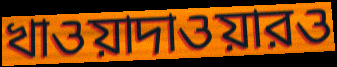
খাওয়াদাওয়ারও